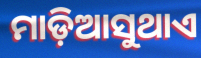
ମାଡ଼ିଆସୁଥାଏ